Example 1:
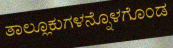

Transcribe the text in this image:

ತಾಲ್ಲೂಕುಗಳನ್ನೊಳಗೊಂಡ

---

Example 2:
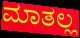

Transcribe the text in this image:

ಮಾತಲ್ಲ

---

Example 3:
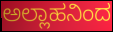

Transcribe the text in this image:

ಅಲ್ಲಾಹನಿಂದ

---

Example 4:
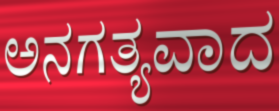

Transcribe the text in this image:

ಅನಗತ್ಯವಾದ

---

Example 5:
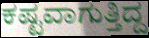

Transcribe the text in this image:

ಕಷ್ಟವಾಗುತ್ತಿದ್ದ